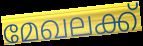
മേഖലക്ക്